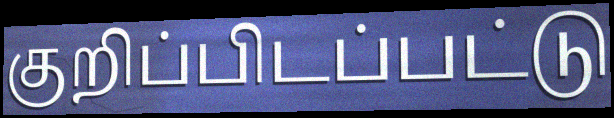
குறிப்பிடப்பட்டு